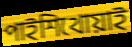
পাইশিথোয়াই